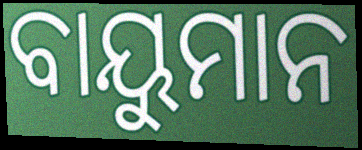
ବାୟୁମାନ